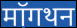
मॉगथन